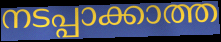
നടപ്പാക്കാത്ത